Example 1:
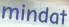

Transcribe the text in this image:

mindat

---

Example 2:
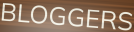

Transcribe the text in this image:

BLOGGERS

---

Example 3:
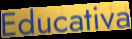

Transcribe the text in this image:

Educativa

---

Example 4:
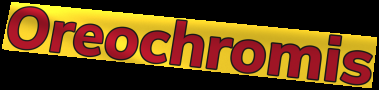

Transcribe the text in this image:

Oreochromis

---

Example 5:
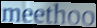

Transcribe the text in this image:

meethoo